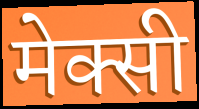
मेक्सी